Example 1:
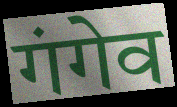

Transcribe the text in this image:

गंगेव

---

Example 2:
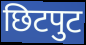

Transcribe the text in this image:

छिटपुट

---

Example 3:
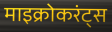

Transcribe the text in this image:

माइक्रोकरंट्स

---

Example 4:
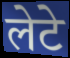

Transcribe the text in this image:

लेटे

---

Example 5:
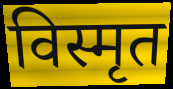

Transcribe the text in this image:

विस्मृत